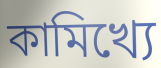
কামিখ্যে